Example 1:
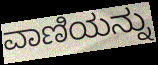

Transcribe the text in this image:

ವಾಣಿಯನ್ನು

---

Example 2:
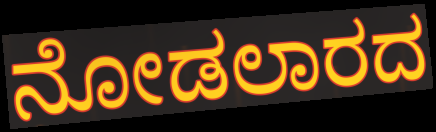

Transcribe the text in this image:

ನೋಡಲಾರದ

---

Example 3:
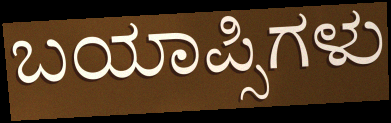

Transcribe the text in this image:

ಬಯಾಪ್ಸಿಗಳು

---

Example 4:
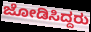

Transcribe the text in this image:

ಜೋಡಿಸಿದ್ದರು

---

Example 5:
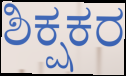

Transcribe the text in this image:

ಶಿಕ್ಷಕರ